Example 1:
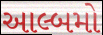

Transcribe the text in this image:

આલ્બમો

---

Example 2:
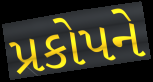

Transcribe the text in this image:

પ્રકોપને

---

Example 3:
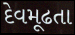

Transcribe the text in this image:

દેવમૂઢતા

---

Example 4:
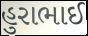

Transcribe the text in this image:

હુરાભાઈ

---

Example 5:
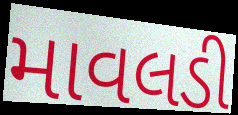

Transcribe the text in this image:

માવલડી